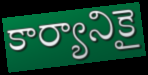
కార్యానికై